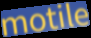
motile